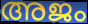
അജം